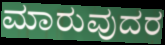
ಮಾರುವುದರ